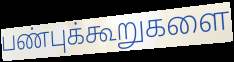
பண்புக்கூறுகளை